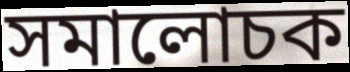
সমালোচক